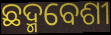
ଛଦ୍ମବେଶୀ